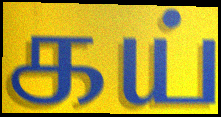
கய்